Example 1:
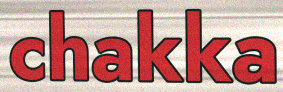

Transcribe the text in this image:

chakka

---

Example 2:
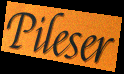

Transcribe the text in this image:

Pileser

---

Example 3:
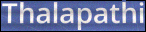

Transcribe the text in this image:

Thalapathi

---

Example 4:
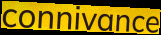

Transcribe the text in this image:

connivance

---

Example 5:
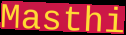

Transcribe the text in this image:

Masthi